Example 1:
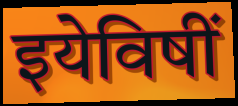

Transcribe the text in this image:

इयेविषीं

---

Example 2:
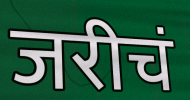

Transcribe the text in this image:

जरीचं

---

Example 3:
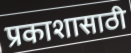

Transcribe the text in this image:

प्रकाशासाठी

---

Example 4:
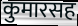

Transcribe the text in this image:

कुमारसह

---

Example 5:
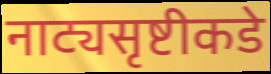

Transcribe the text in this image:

नाट्यसृष्टीकडे